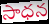
సాధన